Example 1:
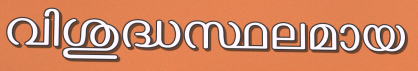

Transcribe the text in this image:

വിശുദ്ധസ്ഥലമായ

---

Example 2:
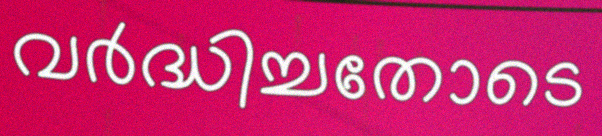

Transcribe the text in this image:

വർദ്ധിച്ചതോടെ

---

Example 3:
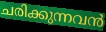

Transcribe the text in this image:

ചരിക്കുന്നവൻ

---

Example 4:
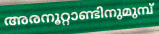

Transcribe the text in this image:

അരനൂറ്റാണ്ടിനുമുമ്പ്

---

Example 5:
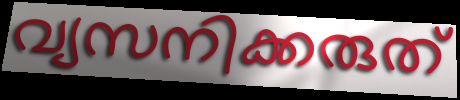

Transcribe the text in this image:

വ്യസനിക്കരുത്